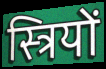
स्‍त्रियों